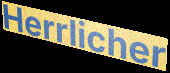
Herrlicher